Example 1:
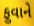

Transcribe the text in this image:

ફુવાને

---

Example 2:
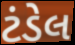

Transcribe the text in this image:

ટંડેલ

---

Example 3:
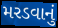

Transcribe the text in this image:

મરડવાનું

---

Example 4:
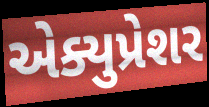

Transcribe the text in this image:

એક્યુપ્રેશર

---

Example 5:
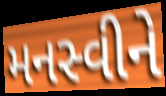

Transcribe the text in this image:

મનસ્વીને